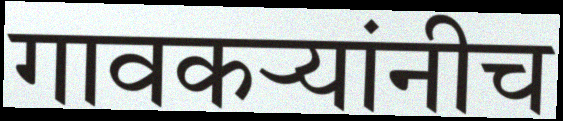
गावकऱ्यांनीच